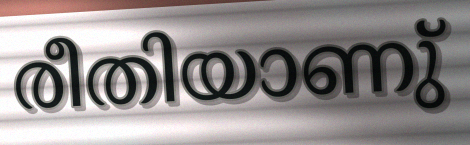
രീതിയാണു്